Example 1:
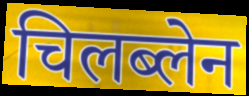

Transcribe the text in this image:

चिलब्लेन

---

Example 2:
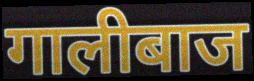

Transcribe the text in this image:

गालीबाज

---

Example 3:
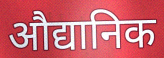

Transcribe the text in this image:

औद्यानिक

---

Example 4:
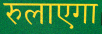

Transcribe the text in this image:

रुलाएगा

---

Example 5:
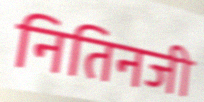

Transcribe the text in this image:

नितिनजी